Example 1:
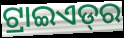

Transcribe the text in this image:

ଟ୍ରାଇଏଡ୍‌ର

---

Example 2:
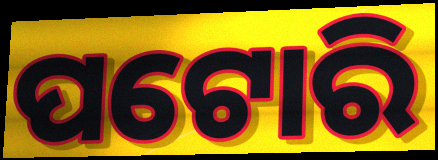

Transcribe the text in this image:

ପଟୋରି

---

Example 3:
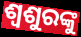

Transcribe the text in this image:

ଶ୍ୱଶୁରଙ୍କୁ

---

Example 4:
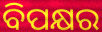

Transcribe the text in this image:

ବିପକ୍ଷର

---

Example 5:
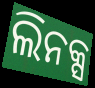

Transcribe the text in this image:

ଲିନକ୍ସ